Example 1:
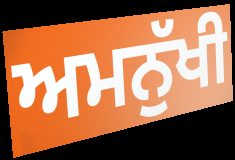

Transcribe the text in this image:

ਅਮਨੁੱਖੀ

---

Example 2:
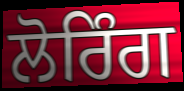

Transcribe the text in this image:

ਲੋਰਿੰਗ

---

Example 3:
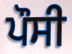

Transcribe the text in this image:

ਪੌਸੀ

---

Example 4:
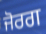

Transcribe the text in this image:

ਜੋਰਗ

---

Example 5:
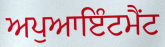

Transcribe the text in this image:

ਅਪੁਆਇੰਟਮੈਂਟ